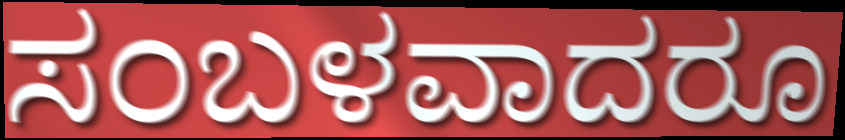
ಸಂಬಳವಾದರೂ